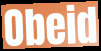
Obeid